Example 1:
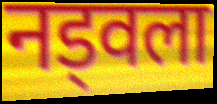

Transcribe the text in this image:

नड्वला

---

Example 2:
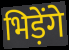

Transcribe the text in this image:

भिड़ेंगे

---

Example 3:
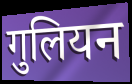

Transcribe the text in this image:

गुलियन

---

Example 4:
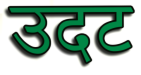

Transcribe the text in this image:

उदट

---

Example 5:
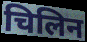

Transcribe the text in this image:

चिलिन